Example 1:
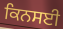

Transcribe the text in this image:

ਕਿਨਸਈ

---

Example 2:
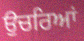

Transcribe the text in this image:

ਉਚਰਿਆਂ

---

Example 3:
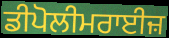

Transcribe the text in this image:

ਡੀਪੋਲੀਮਰਾਈਜ਼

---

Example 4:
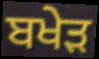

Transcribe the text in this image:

ਬਖੇੜ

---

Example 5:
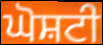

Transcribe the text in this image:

ਘੋਸ਼ਟੀ